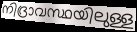
നിദ്രാവസ്ഥയിലുള്ള